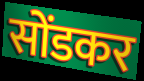
सोंडकर